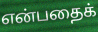
என்பதைக்